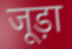
जूड़ा